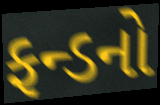
ફન્ડનો